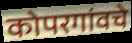
कोपरगांवचे